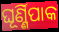
ଘୂର୍ଣ୍ଣିପାକ